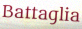
Battaglia